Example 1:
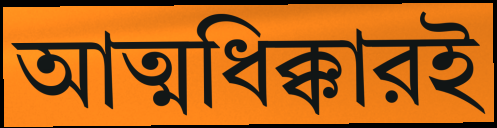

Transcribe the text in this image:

আত্মধিক্কারই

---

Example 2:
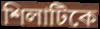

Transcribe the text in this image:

শিলাটিকে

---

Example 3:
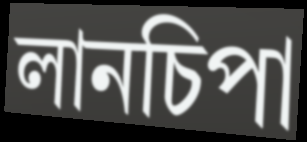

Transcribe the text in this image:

লানচিপা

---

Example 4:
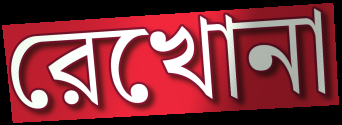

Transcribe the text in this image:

রেখোনা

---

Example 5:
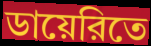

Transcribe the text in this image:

ডায়েরিতে